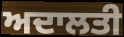
ਅਦਾਲਤੀ